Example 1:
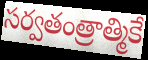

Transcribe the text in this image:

సర్వతంత్రాత్మికే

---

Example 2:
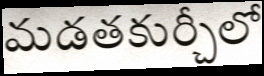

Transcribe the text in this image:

మడతకుర్చీలో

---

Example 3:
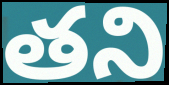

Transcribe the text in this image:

తని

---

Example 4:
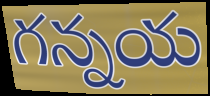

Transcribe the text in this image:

గన్నయ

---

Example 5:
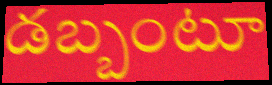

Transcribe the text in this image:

డబ్బంటూ